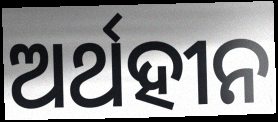
ଅର୍ଥହୀନ